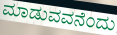
ಮಾಡುವವನೆಂದು